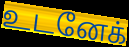
உடனேக்